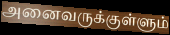
அனைவருக்குள்ளும்